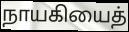
நாயகியைத்